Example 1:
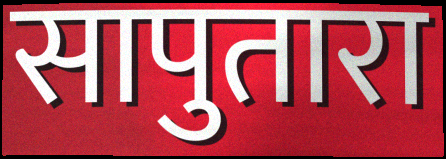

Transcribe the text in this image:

सापुतारा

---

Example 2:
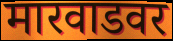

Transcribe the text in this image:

मारवाडवर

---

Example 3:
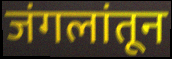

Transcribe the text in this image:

जंगलांतून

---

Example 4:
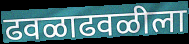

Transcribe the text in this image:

ढवळाढवळीला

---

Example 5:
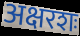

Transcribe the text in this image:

अक्षरशः